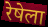
रेषेला